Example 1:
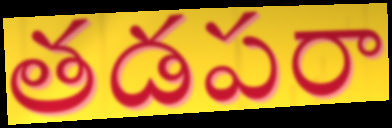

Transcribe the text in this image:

తడపరా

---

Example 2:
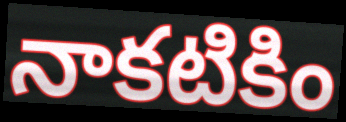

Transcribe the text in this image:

నాకటికిం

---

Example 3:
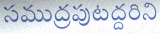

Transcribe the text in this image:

సముద్రపుటద్దరిని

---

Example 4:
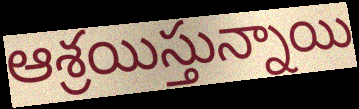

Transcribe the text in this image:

ఆశ్రయిస్తున్నాయి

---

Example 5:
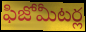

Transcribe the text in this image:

ఫిజోమీటర్ల